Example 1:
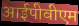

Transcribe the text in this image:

आईपीवीएम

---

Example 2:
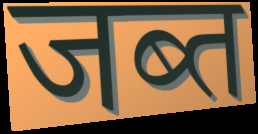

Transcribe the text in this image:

जब्त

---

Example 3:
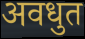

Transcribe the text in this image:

अवधुत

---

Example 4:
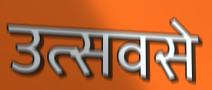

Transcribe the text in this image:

उत्सवसे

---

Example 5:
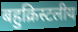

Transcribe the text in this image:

बहुक्रिस्टलीय